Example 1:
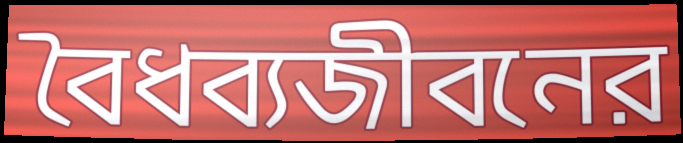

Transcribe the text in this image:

বৈধব্যজীবনের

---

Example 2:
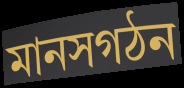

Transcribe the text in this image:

মানসগঠন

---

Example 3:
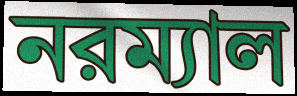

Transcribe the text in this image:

নরম্যাল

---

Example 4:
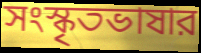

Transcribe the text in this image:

সংস্কৃতভাষার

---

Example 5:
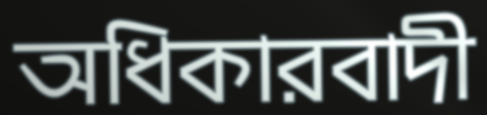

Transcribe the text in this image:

অধিকারবাদী